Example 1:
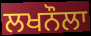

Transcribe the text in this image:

ਲਖਨੌਲਾ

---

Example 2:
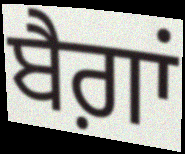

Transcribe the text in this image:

ਬੈਗ਼ਾਂ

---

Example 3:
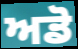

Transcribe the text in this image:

ਅਡੋ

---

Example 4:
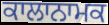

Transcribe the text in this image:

ਕਾਲਾਨਾਮਕ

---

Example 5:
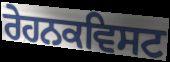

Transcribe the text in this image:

ਰੇਹਨਕਵਿਸਟ